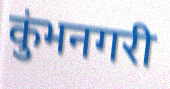
कुंभनगरी